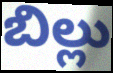
బిల్లు